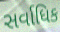
સર્વાધિક